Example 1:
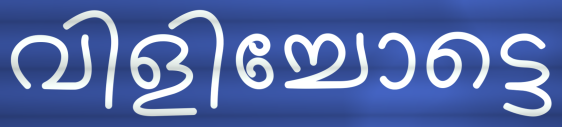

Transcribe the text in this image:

വിളിച്ചോട്ടെ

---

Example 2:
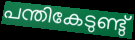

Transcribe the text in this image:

പന്തികേടുണ്ടു്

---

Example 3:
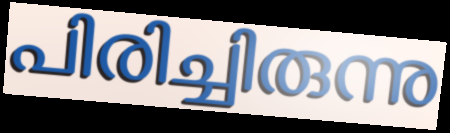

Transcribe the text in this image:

പിരിച്ചിരുന്നു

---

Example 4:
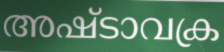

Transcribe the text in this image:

അഷ്ടാവക്ര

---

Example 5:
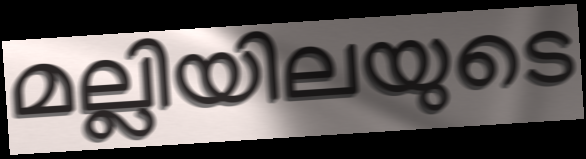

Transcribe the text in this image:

മല്ലിയിലയുടെ